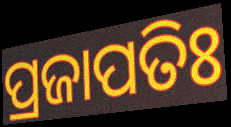
ପ୍ରଜାପତିଃ